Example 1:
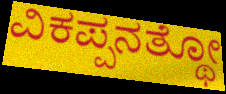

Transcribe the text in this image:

ವಿಕಪ್ಪನತ್ಥೋ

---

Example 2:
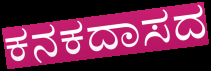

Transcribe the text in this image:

ಕನಕದಾಸದ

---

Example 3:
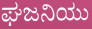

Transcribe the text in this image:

ಘಜನಿಯು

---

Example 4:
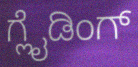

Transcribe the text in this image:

ಗ್ಲೈಡಿಂಗ್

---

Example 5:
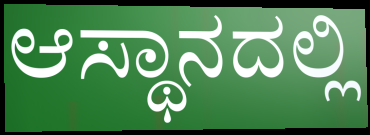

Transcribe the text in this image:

ಆಸ್ಥಾನದಲ್ಲಿ